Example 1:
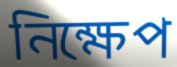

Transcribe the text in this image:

নিক্ষেপ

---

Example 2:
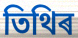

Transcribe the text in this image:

তিথিৰ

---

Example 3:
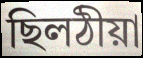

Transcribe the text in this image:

ছিলঠীয়া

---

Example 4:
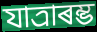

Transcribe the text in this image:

যাত্ৰাৰম্ভ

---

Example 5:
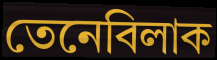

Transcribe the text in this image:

তেনেবিলাক